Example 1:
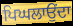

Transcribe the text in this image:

ਪਿਘਲਾਉਂਦਾ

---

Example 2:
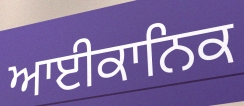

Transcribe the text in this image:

ਆਈਕਾਨਿਕ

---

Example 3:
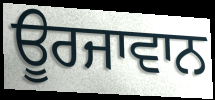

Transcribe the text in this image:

ਊਰਜਾਵਾਨ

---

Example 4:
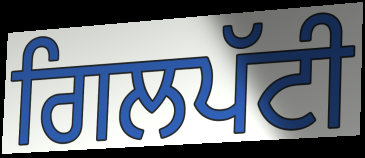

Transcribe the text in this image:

ਗਿਲਪੱਟੀ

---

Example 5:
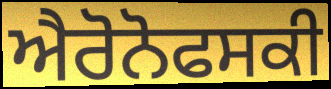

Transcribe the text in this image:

ਐਰੋਨੋਫਸਕੀ